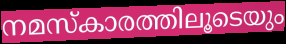
നമസ്കാരത്തിലൂടെയും